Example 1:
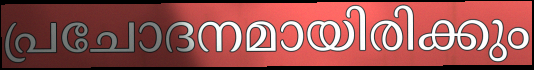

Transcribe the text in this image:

പ്രചോദനമായിരിക്കും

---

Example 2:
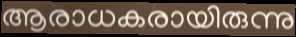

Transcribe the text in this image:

ആരാധകരായിരുന്നു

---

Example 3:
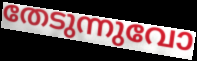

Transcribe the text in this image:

തേടുന്നുവോ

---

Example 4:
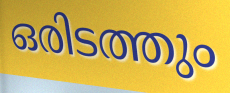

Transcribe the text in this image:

ഒരിടത്തും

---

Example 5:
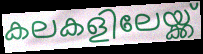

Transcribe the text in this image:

കലകളിലേയ്ക്ക്